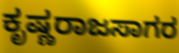
ಕೃಷ್ಣರಾಜಸಾಗರ